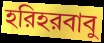
হরিহরবাবু